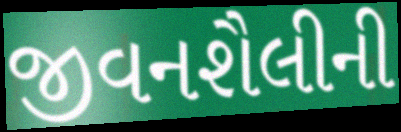
જીવનશૈલીની